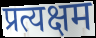
प्रत्यक्षम